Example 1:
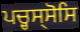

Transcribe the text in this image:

ਪਚ੍ਚਸ੍ਸੋਸਿ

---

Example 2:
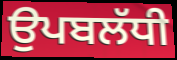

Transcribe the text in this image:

ਉਪਬਲੱਧੀ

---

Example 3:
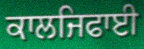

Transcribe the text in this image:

ਕਾਲਜਿਫਾਈ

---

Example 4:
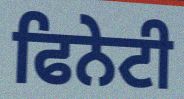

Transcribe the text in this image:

ਫਿਨੇਟੀ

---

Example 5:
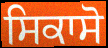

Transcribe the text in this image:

ਸਿਕਾਸੋ